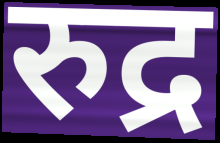
रुद्र